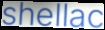
shellac